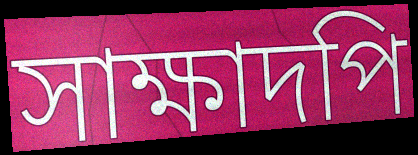
সাক্ষাদপি